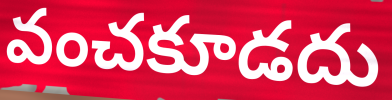
వంచకూడదు